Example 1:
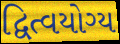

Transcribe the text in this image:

દ્વિત્વયોગ્ય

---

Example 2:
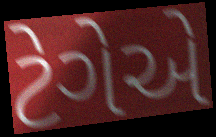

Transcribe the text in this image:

ટેગેએ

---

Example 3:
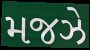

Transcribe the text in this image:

મજઝે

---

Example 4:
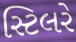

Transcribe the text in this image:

સ્ટિલરે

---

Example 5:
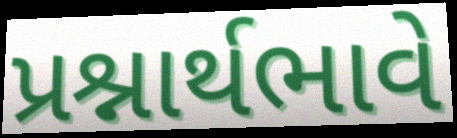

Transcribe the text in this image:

પ્રશ્નાર્થભાવે